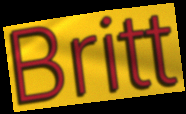
Britt